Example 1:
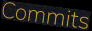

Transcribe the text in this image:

Commits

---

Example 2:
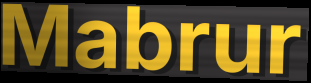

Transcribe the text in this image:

Mabrur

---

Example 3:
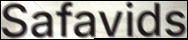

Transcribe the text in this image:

Safavids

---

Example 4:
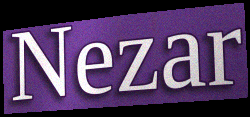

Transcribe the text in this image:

Nezar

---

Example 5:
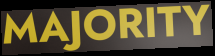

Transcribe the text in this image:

MAJORITY